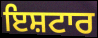
ਇਸ਼ਟਾਰ